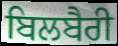
ਬਿਲਬੈਰੀ